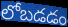
లోబడడం